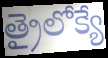
త్రైలోక్యే